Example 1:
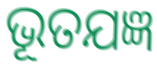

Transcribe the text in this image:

ଭୂତଯଜ୍ଞ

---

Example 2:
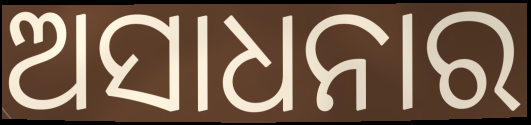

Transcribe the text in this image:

ଅସାଧନାର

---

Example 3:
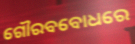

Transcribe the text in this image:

ଗୌରବବୋଧରେ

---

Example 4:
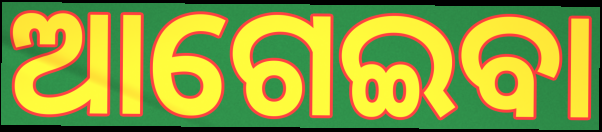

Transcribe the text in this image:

ଆଗେଇବା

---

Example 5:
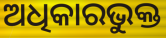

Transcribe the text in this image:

ଅଧିକାରଭୁକ୍ତ